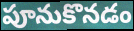
పూనుకొనడం